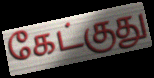
கேட்குது